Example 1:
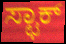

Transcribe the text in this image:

ಸ್ಟಾಕ್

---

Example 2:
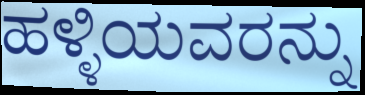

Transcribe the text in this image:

ಹಳ್ಳಿಯವರನ್ನು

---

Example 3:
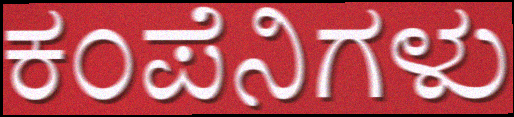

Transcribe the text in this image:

ಕಂಪೆನಿಗಳು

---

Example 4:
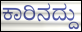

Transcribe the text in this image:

ಕಾರಿನದ್ದು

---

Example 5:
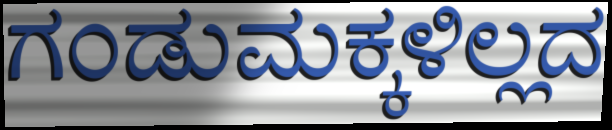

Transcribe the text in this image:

ಗಂಡುಮಕ್ಕಳಿಲ್ಲದ